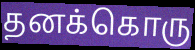
தனக்கொரு